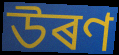
উৰণ